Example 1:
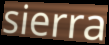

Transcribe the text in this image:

sierra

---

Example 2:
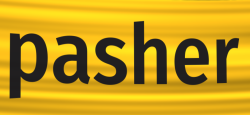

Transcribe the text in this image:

pasher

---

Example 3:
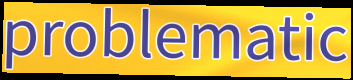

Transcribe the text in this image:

problematic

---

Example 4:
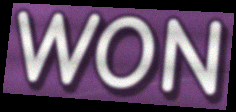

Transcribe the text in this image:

WON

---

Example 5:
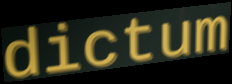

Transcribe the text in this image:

dictum